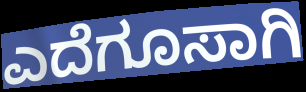
ಎದೆಗೂಸಾಗಿ